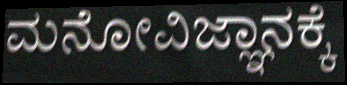
ಮನೋವಿಜ್ಞಾನಕ್ಕೆ